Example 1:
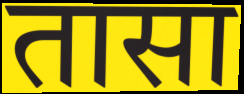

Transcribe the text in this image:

तासा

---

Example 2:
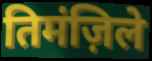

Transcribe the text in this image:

तिमंज़िले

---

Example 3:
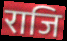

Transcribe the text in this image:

राजि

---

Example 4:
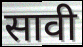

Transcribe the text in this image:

सावी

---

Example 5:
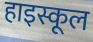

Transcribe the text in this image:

हाइस्कूल